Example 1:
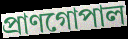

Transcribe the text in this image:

প্রাণগোপাল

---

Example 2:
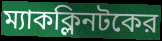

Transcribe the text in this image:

ম্যাকক্লিনটকের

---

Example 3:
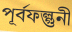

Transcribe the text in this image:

পূর্বফল্গুনী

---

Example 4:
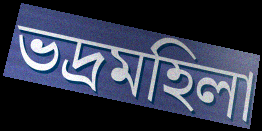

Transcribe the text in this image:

ভদ্রমহিলা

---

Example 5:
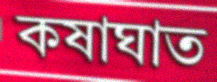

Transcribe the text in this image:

কষাঘাত